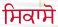
ਸਿਕਾਸੋ